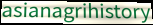
asianagrihistory